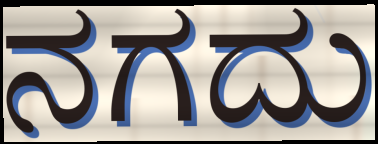
ನಗದು